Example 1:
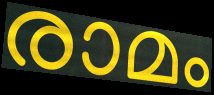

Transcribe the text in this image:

രാമം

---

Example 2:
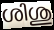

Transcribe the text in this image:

ശിശു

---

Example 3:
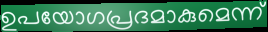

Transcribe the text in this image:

ഉപയോഗപ്രദമാകുമെന്ന്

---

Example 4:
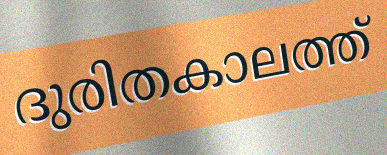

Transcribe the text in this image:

ദുരിതകാലത്ത്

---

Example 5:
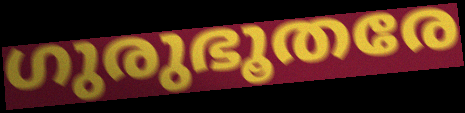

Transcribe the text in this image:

ഗുരുഭൂതരേ